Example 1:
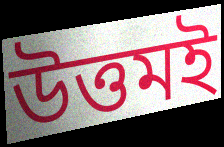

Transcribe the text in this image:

উত্তমই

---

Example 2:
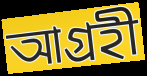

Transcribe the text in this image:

আগ্রহী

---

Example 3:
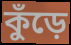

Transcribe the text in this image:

কুঁড়ে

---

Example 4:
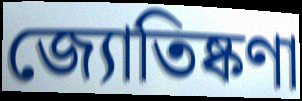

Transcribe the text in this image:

জ্যোতিষ্কণা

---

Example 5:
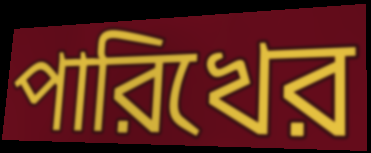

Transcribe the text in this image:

পারিখের